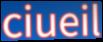
ciueil